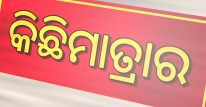
କିଛିମାତ୍ରାର